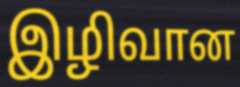
இழிவான